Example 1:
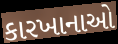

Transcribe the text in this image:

કારખાનાઓ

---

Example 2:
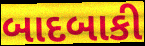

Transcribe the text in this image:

બાદબાકી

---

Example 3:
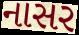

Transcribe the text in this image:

નાસર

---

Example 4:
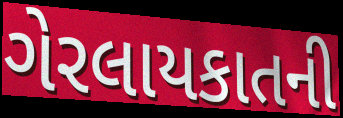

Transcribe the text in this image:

ગેરલાયકાતની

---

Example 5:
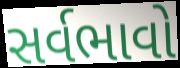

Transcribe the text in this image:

સર્વભાવો